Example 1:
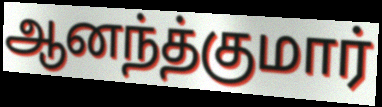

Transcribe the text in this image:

ஆனந்த்குமார்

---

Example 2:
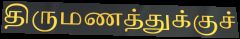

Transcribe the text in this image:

திருமணத்துக்குச்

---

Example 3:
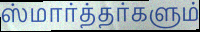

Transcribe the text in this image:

ஸ்மார்த்தர்களும்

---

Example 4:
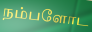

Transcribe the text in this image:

நம்பளோட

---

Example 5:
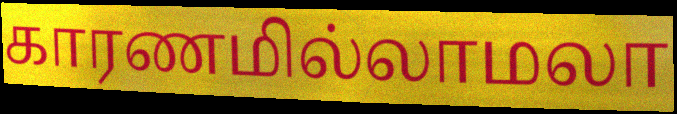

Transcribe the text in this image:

காரணமில்லாமலா